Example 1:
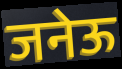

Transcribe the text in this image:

जनेऊ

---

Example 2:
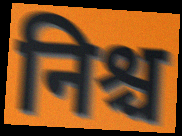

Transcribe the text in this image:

निश्च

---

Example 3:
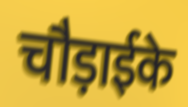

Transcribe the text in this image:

चौड़ाईके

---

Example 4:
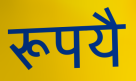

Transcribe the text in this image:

रूपयै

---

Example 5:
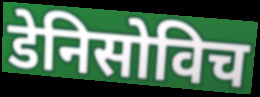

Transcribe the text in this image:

डेनिसोविच